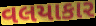
વલયાકાર